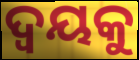
ଦ୍ଵୟକୁ